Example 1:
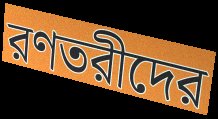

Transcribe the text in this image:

রণতরীদের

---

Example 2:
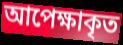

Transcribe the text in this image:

আপেক্ষাকৃত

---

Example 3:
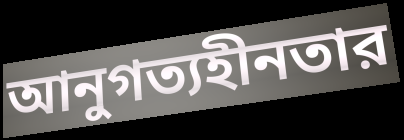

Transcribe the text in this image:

আনুগত্যহীনতার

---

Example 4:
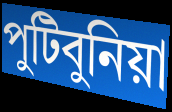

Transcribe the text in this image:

পুটিবুনিয়া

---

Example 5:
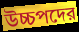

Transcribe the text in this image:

উচ্চপদের